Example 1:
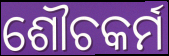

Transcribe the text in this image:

ଶୌଚକର୍ମ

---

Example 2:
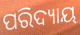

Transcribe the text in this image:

ପରିଦ୍ୟାୟ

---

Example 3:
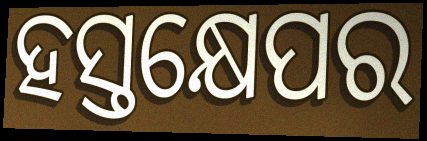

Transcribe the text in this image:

ହସ୍ତକ୍ଷେପର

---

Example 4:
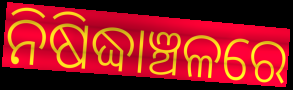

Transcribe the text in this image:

ନିଷିଦ୍ଧାଞ୍ଚଳରେ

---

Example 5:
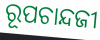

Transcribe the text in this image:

ରୂପଚାନ୍ଦଜୀ